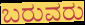
ಬರುವರು